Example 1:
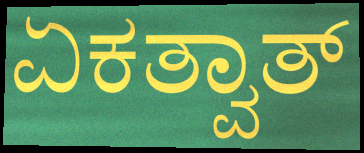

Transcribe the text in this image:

ಏಕತ್ವಾತ್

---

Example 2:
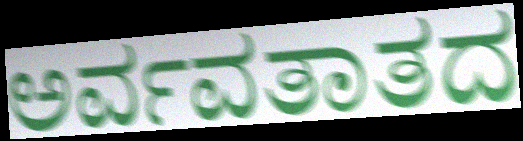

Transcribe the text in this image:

ಅರ್ವವತಾತದ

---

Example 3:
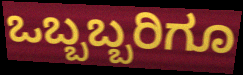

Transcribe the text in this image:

ಒಬ್ಬಬ್ಬರಿಗೂ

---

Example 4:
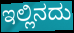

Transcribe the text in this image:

ಇಲ್ಲಿನದು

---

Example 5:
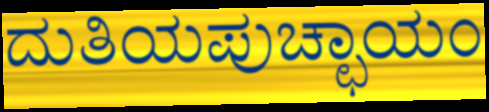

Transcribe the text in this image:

ದುತಿಯಪುಚ್ಛಾಯಂ